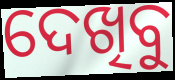
ଦେଖିବୁ